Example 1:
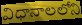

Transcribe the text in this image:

విధానాలలోని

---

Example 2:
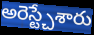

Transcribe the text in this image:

అరెస్ట్చేశారు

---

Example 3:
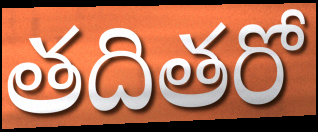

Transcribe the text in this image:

తదితరో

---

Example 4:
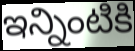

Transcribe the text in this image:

ఇన్నింటికి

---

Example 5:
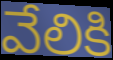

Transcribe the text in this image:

వేలికి